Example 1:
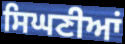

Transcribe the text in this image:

ਸਿਘਣੀਆਂ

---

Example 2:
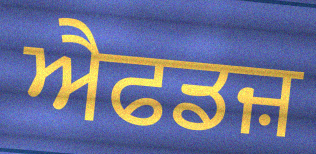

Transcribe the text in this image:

ਐਫਡਜ਼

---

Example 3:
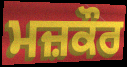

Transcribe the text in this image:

ਮਜ਼ਕੌਰ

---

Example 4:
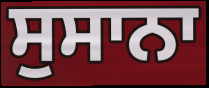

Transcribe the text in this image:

ਸੁਸਾਨਾ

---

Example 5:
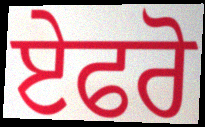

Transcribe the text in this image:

ਏਫਰੋ